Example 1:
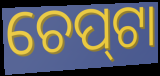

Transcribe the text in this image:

ଚେପ୍‍ଟା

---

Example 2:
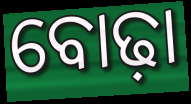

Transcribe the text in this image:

ବୋଢ଼ା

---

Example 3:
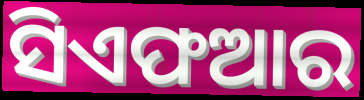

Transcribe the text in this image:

ସିଏଫଆର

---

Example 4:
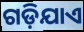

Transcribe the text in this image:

ଗଡ଼ିଯାଏ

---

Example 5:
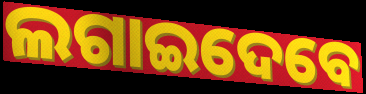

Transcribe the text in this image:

ଲଗାଇଦେବେ